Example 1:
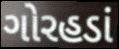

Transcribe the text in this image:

ગોરહડાં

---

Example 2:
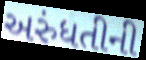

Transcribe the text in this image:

અરુંધતીની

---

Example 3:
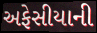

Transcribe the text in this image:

અફેસીયાની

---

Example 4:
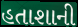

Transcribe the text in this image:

હતાશાની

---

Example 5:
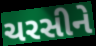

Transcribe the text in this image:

ચરસીને